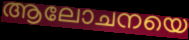
ആലോചനയെ